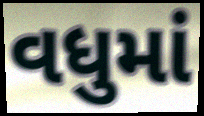
વધુમાં